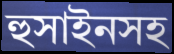
হুসাইনসহ